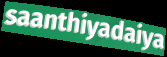
saanthiyadaiya